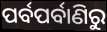
ପର୍ବପର୍ବାଣିରୁ